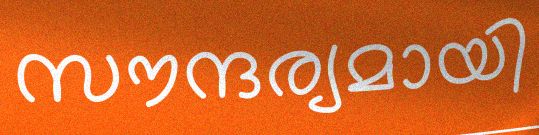
സൗന്ദര്യമായി